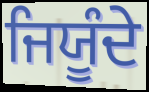
ਜਿਯੂੰਦੇ